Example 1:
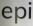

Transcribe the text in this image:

epi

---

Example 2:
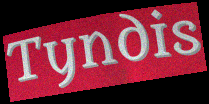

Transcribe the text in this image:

Tyndis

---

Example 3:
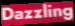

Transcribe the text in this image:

Dazzling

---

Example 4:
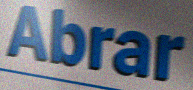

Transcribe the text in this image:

Abrar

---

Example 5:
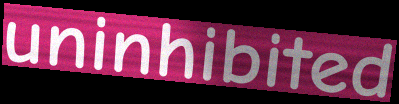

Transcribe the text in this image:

uninhibited